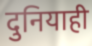
दुनियाही